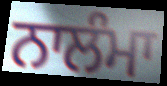
ਨਾਲੰਮਾ